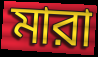
মারা